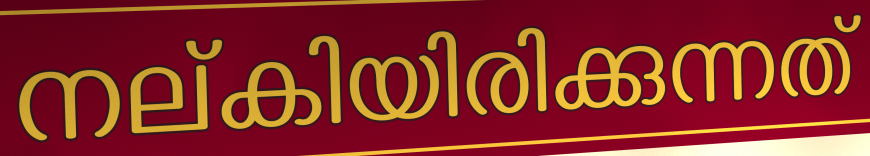
നല്‌കിയിരിക്കുന്നത്